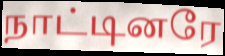
நாட்டினரே